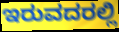
ಇರುವದರಲ್ಲಿ